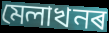
মেলাখনৰ